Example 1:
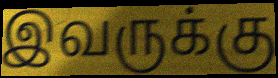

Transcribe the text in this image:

இவருக்கு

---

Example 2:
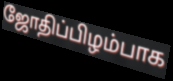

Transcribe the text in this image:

ஜோதிப்பிழம்பாக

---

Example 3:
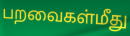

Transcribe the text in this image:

பறவைகள்மீது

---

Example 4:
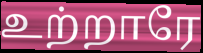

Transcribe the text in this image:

உற்றாரே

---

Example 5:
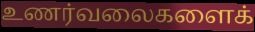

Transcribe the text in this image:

உணர்வலைகளைக்